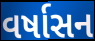
વર્ષાસન